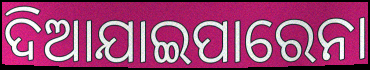
ଦିଆଯାଇପାରେନା